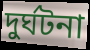
দুৰ্ঘটনা